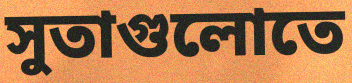
সুতাগুলোতে